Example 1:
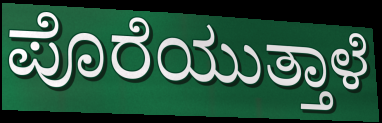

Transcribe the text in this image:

ಪೊರೆಯುತ್ತಾಳೆ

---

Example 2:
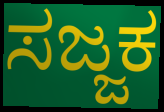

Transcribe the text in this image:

ಸಜ್ಜಕ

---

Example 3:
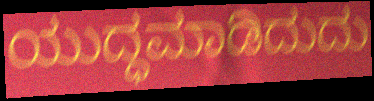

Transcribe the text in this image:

ಯುದ್ಧಮಾಡಿದುದು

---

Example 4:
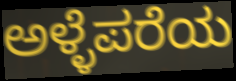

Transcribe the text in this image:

ಅಳ್ಳೆಪರೆಯ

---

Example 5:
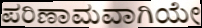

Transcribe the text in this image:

ಪರಿಣಾಮವಾಗಿಯೇ